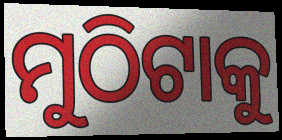
ମୁଠିଟାକୁ